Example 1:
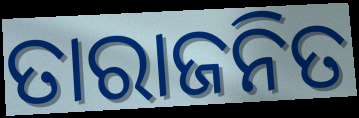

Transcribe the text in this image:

ତାରାଜନିତ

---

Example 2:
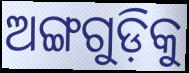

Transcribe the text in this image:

ଅଙ୍ଗଗୁଡ଼ିକୁ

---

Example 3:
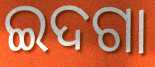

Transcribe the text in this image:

ଇଦଗା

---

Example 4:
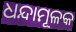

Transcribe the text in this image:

ଧନ୍ଦାମୂଳକ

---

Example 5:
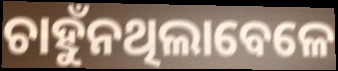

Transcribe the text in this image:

ଚାହୁଁନଥିଲାବେଳେ